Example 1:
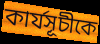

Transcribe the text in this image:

কার্যসূচীকে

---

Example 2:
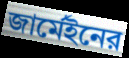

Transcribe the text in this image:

জার্মেইনের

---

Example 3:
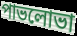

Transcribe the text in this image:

পাভলোভা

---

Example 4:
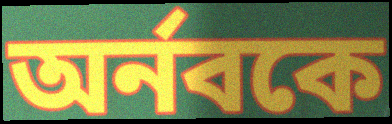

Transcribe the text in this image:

অর্নবকে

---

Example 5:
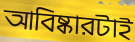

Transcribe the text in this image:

আবিষ্কারটাই